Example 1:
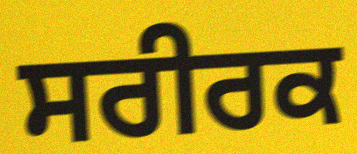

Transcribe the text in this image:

ਸਰੀਰਕ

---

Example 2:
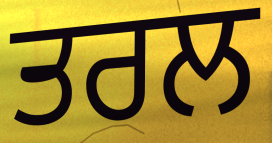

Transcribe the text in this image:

ਤਰਲ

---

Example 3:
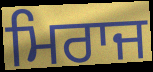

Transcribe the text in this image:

ਮਿਰਾਜ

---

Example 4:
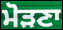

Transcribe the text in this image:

ਮੋੜਣਾ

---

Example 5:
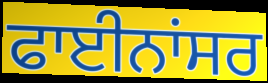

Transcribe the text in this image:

ਫਾਈਨਾਂਸਰ